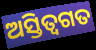
ଅସ୍ତିତ୍ବଗତ